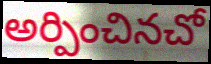
అర్పించినచో